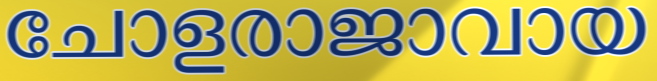
ചോളരാജാവായ